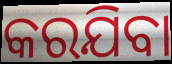
କରଯିବା